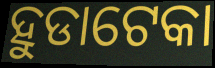
ହୁଡାଟେକା